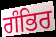
ਗੰਭਿਰ